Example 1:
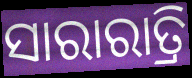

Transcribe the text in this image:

ସାରାରାତ୍ରି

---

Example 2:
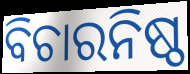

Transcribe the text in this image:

ବିଚାରନିଷ୍ଠ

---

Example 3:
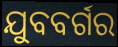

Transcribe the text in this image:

ଯୁବବର୍ଗର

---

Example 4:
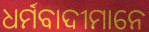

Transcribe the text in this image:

ଧର୍ମବାଦୀମାନେ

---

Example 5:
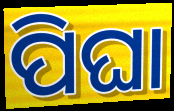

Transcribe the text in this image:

ପିଘା